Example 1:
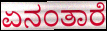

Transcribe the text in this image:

ಏನಂತಾರೆ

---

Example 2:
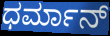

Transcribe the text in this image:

ಧರ್ಮಾನ್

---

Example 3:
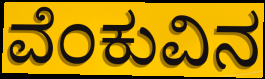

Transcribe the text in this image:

ವೆಂಕುವಿನ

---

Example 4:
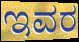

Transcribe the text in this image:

ಇವರ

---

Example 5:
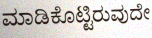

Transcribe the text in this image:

ಮಾಡಿಕೊಟ್ಟಿರುವುದೇ